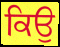
ਕਿਉ